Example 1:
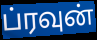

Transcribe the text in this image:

ப்ரவுன்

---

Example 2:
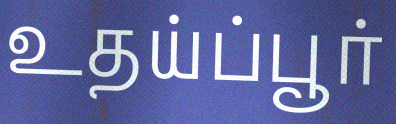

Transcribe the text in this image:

உதய்ப்பூர்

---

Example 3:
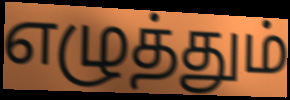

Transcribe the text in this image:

எழுத்தும்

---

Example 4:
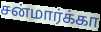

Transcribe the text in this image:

சன்மார்க்கா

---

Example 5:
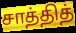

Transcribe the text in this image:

சாத்தித்